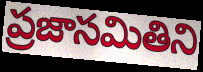
ప్రజాసమితిని